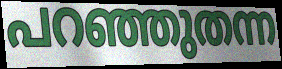
പറഞ്ഞുതന്ന